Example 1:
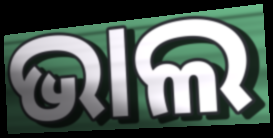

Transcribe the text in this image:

ଭାଲ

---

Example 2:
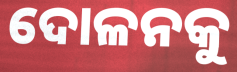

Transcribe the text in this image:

ଦୋଳନକୁ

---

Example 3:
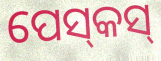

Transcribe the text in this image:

ପେସ୍‌କସ୍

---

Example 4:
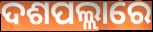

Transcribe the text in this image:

ଦଶପଲ୍ଲାରେ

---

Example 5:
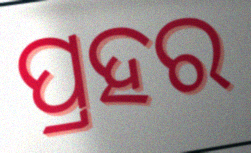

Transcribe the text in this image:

ପ୍ରହର